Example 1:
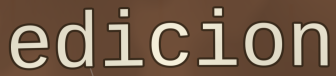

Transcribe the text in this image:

edicion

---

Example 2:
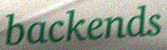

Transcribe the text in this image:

backends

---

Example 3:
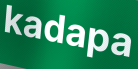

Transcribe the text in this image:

kadapa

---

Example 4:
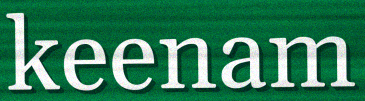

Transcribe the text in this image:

keenam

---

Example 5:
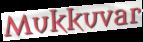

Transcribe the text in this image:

Mukkuvar